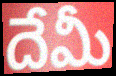
దేమీ